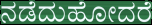
ನಡೆದುಹೋದರೆ